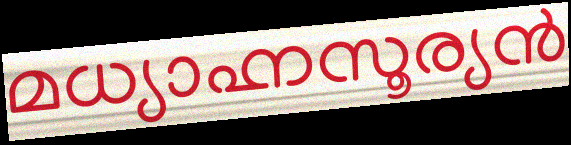
മധ്യാഹ്നസൂര്യൻ